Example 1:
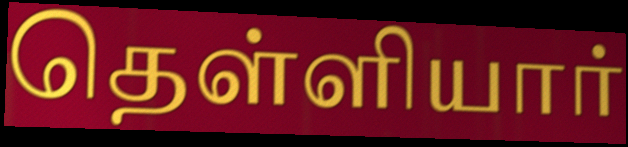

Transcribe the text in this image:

தெள்ளியார்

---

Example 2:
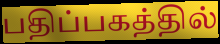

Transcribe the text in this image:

பதிப்பகத்தில்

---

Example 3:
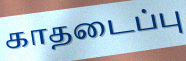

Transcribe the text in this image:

காதடைப்பு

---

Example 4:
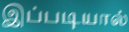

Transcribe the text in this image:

இப்படியால்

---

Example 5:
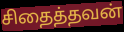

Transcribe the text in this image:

சிதைத்தவன்